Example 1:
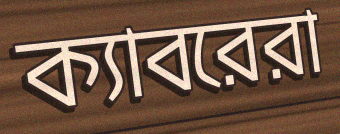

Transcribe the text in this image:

ক্যাবরেরা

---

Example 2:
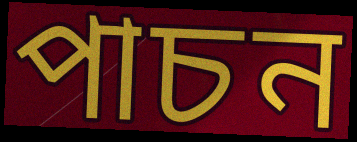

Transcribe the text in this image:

পাচন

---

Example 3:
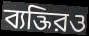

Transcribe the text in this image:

ব্যক্তিরও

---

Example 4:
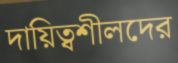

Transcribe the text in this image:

দায়িত্বশীলদের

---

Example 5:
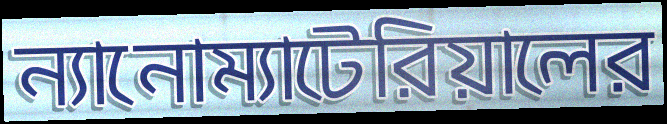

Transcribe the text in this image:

ন্যানোম্যাটেরিয়ালের